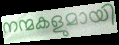
നന്മകളുമായി